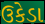
ઉકેડા